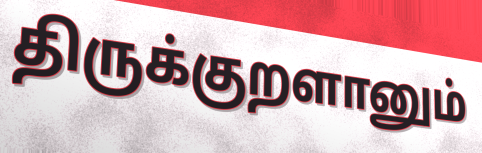
திருக்குறளானும்